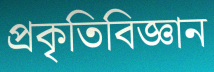
প্রকৃতিবিজ্ঞান